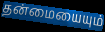
தன்மையையும்